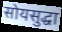
सोयसुद्धा